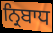
ਨ੍ਰਿਬਾਧ